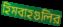
হিমবাহগুলির